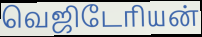
வெஜிடேரியன்